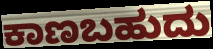
ಕಾಣಬಹುದು